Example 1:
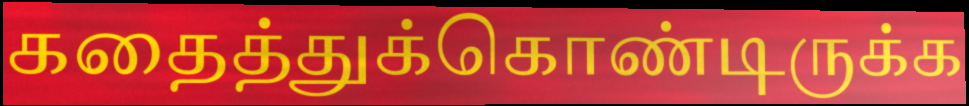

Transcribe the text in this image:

கதைத்துக்கொண்டிருக்க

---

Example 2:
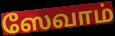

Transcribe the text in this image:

ஸேவாம்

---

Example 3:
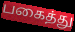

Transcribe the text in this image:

பகைத்து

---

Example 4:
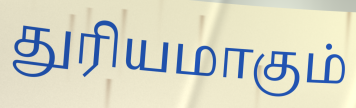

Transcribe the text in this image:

துரியமாகும்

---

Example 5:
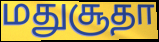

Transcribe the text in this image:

மதுசூதா